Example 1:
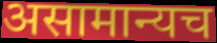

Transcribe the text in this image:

असामान्यच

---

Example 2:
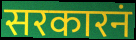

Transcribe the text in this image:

सरकारनं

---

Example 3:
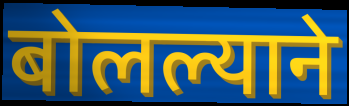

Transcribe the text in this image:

बोलल्याने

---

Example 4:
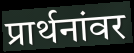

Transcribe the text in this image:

प्रार्थनांवर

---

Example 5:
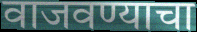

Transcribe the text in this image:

वाजवण्याचा